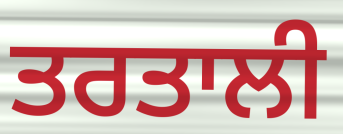
ਤਰਤਾਲੀ